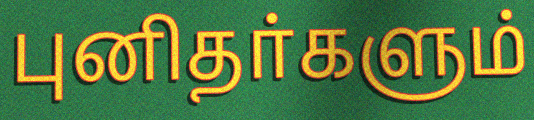
புனிதர்களும்